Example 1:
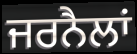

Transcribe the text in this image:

ਜਰਨੈਲਾਂ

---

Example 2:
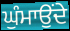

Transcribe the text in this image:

ਘੁੰਮਾਉਂਦੇ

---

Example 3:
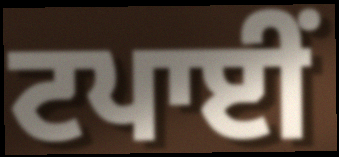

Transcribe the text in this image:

ਟਪਾਈਂ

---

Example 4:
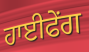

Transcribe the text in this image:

ਹਾਈਫੇਂਗ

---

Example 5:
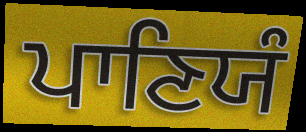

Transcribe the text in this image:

ਪਾਣਿਯੰ